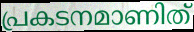
പ്രകടനമാണിത്